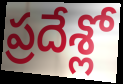
ప్రదేశ్లో